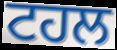
ਟਹਲ